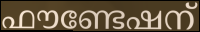
ഫൗണ്ടേഷന്